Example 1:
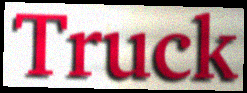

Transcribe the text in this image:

Truck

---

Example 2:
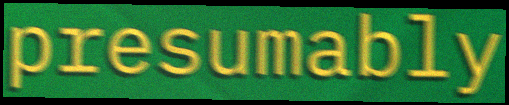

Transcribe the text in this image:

presumably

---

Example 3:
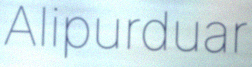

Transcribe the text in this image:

Alipurduar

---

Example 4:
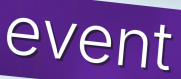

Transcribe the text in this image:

event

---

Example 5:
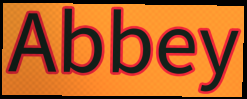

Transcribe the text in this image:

Abbey